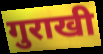
गुराखी